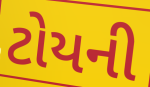
ટોયની